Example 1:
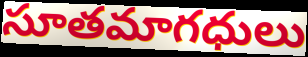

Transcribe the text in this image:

సూతమాగధులు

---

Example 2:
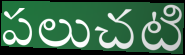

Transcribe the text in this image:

పలుచటి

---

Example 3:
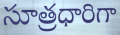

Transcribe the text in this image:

సూత్రధారిగా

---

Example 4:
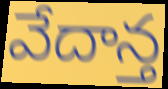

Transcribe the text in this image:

వేదాన్త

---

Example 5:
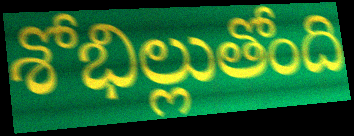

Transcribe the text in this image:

శోభిల్లుతోంది